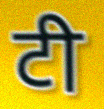
टी